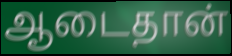
ஆடைதான்